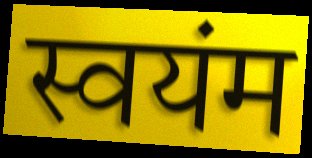
स्वयंम